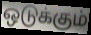
ஒடுக்கும்